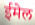
ईमेल